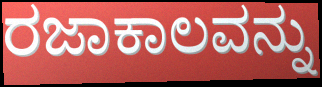
ರಜಾಕಾಲವನ್ನು